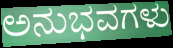
ಅನುಭವಗಳು